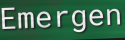
Emergen